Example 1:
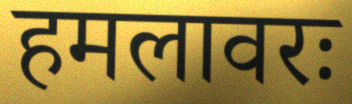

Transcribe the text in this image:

हमलावरः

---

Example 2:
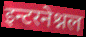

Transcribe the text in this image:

इन्टरनेश्नल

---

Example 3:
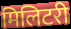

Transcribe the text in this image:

मिलिटरी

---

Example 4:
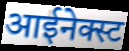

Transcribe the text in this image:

आईनेक्स्ट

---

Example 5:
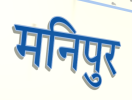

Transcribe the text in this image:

मनिपुर